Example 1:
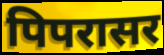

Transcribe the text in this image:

पिपरासर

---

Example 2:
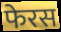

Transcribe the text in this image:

फेरस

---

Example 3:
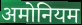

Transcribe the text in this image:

अमोनियम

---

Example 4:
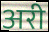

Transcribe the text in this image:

अरी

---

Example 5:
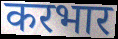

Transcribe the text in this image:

करभार